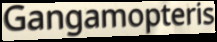
Gangamopteris